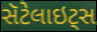
સૅટેલાઇટ્સ